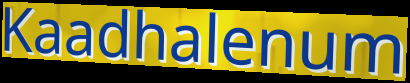
Kaadhalenum